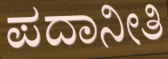
ಪದಾನೀತಿ